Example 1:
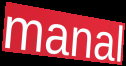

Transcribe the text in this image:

manal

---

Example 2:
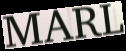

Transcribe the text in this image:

MARL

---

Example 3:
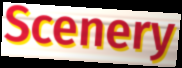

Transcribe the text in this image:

Scenery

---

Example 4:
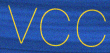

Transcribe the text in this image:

VCC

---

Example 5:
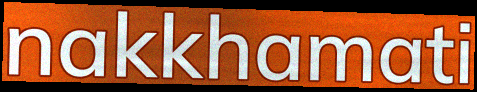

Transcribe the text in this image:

nakkhamati